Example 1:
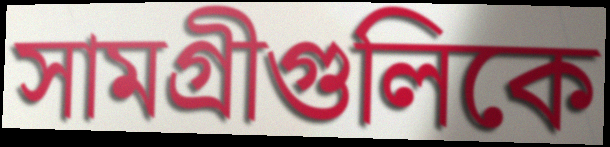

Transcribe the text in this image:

সামগ্রীগুলিকে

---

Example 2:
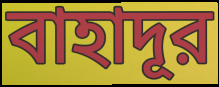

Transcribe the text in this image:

বাহাদূর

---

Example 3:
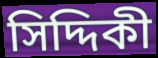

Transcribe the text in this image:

সিদ্দিকী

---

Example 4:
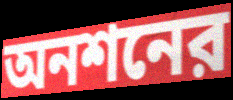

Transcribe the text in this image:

অনশনের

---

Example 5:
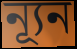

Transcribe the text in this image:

ন্যূন